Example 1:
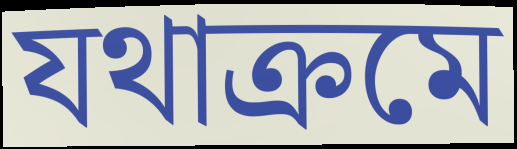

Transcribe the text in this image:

যথাক্রমে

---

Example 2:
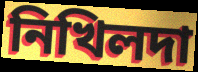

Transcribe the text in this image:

নিখিলদা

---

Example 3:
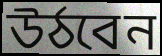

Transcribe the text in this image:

উঠবেন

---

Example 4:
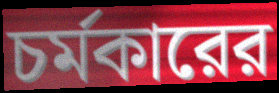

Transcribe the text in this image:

চর্মকারের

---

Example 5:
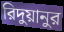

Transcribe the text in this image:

রিদুয়ানুর